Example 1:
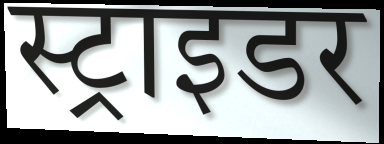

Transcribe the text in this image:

स्ट्राइडर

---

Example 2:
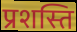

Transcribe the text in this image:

प्रशस्ति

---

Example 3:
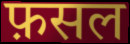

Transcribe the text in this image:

फ़सल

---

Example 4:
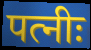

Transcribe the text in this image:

पत्नीः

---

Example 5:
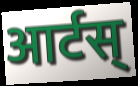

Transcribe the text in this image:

आर्टस्